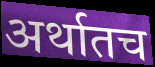
अर्थातच